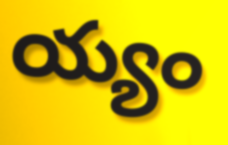
య్యం